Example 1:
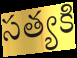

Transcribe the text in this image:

సత్యకి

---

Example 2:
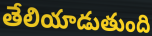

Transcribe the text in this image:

తేలియాడుతుంది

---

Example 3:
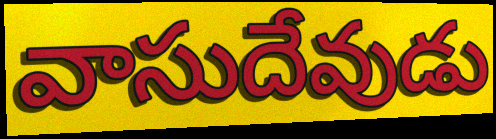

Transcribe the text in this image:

వాసుదేవుడు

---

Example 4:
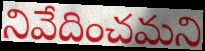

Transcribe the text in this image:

నివేదించమని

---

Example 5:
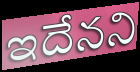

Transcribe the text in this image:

ఇదేనని